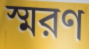
স্মরণ